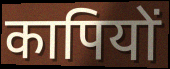
कापियों